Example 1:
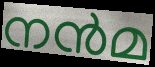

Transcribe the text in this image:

നൻമ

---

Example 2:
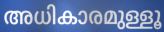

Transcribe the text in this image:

അധികാരമുള്ളൂ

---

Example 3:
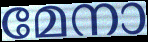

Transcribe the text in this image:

മേനാ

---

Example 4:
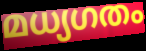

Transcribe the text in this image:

മധ്യഗതം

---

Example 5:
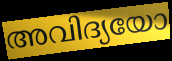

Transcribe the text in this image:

അവിദ്യയോ